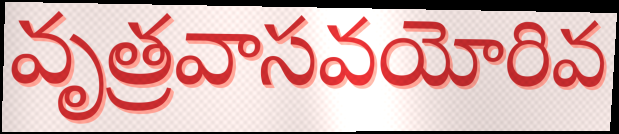
వృత్రవాసవయోరివ